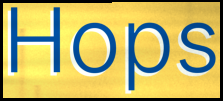
Hops